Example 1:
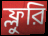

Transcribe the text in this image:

ফ্লুরি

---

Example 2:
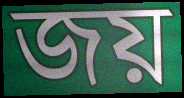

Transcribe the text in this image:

জয়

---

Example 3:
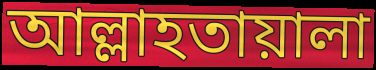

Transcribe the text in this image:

আল্লাহতায়ালা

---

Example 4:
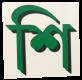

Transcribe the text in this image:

শি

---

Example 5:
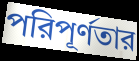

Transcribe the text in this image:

পরিপূর্ণতার